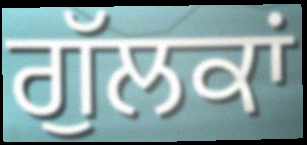
ਗੁੱਲਕਾਂ